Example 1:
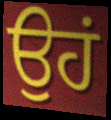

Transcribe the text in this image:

ਉਹਂ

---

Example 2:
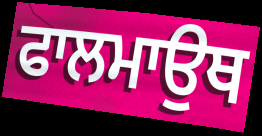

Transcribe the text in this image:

ਫਾਲਮਾਉਥ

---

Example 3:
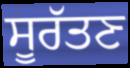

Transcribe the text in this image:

ਸੂਰੱਤਣ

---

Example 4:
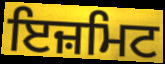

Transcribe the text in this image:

ਇਜ਼ਮਿਟ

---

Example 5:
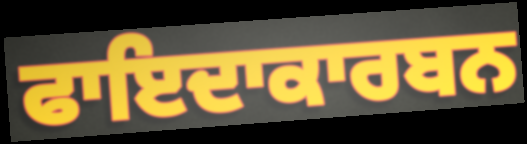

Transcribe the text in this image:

ਫਾਇਦਾਕਾਰਬਨ